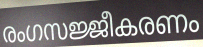
രംഗസജ്ജീകരണം